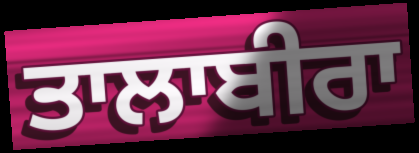
ਤਾਲਾਬੀਰਾ